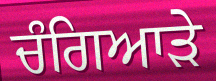
ਚੰਗਿਆੜੇ